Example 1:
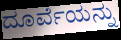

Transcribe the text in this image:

ದೂರ್ವೆಯನ್ನು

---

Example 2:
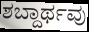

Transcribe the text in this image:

ಶಬ್ದಾರ್ಥವು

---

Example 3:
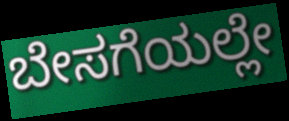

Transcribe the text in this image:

ಬೇಸಗೆಯಲ್ಲೇ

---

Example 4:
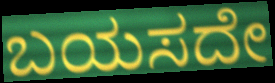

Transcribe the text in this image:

ಬಯಸದೇ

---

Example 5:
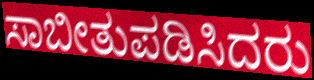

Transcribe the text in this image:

ಸಾಬೀತುಪಡಿಸಿದರು